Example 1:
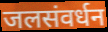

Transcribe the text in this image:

जलसंवर्धन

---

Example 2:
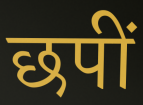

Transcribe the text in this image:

छपीं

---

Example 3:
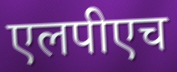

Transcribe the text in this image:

एलपीएच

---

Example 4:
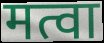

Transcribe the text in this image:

मत्वा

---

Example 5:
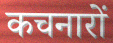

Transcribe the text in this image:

कचनारों